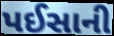
પઈસાની